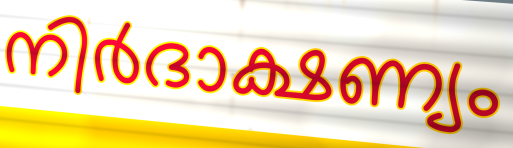
നിർദാക്ഷണ്യം